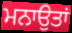
ਮਨਾਉਤਾਂ